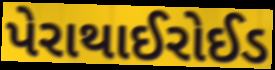
પેરાથાઈરોઈડ